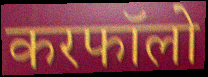
करफॉलो